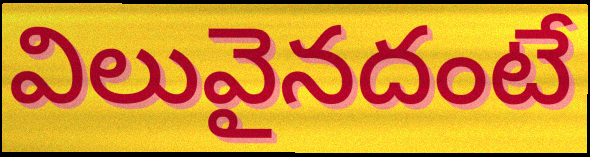
విలువైనదంటే